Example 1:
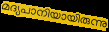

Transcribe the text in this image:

മദ്യപാനിയായിരുന്നു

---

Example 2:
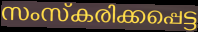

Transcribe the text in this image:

സംസ്‌കരിക്കപ്പെട്ട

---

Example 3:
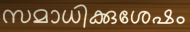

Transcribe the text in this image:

സമാധിക്കുശേഷം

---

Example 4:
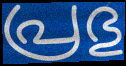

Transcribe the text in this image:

പ്രഭു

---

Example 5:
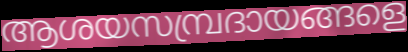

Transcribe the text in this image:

ആശയസമ്പ്രദായങ്ങളെ